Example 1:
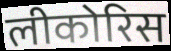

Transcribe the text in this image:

लीकोरिस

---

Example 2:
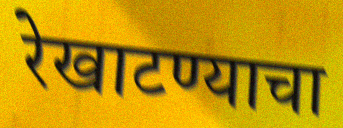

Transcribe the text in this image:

रेखाटण्याचा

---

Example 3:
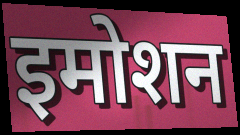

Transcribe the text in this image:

इमोशन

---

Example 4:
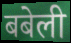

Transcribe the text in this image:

बबेली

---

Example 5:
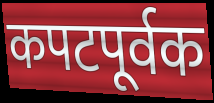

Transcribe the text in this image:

कपटपूर्वक